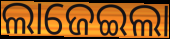
ଲାଜେଇଲା